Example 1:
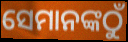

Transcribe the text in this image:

ସେମାନଙ୍କଠୁଁ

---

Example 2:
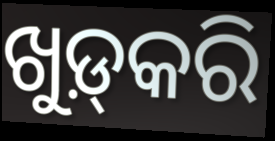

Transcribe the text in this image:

ଖୁଡ଼୍‍କରି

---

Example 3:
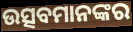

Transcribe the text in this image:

ଉତ୍ସବମାନଙ୍କର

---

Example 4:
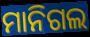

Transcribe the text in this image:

ମାନିଗଲ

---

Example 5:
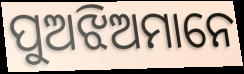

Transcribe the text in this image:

ପୁଅଝିଅମାନେ